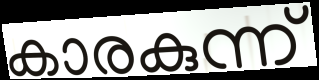
കാരകുന്ന്